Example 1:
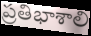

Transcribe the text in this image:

ప్రతిభాశాలి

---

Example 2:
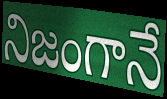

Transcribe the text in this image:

నిజంగానే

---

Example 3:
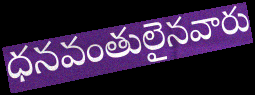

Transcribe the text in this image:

ధనవంతులైనవారు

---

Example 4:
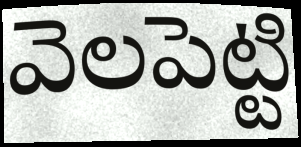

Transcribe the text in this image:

వెలపెట్టి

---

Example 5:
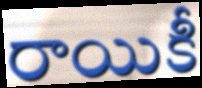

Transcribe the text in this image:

రాయికీ